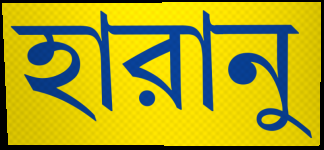
হারানু